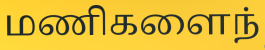
மணிகளைந்